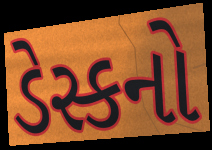
ડેસ્કનો